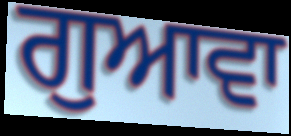
ਗੁਆਵਾ